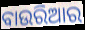
ବାଉରିଆର